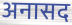
अनासद